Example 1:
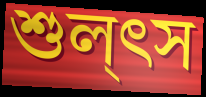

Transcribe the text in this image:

শুল্ৎস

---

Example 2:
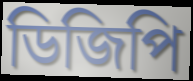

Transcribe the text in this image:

ডিজিপি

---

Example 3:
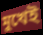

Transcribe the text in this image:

মুখেই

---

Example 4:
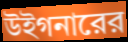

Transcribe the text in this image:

উইগনারের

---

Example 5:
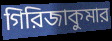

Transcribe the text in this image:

গিরিজাকুমার